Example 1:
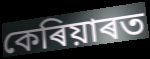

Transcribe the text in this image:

কেৰিয়াৰত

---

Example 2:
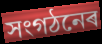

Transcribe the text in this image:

সংগঠনেৰ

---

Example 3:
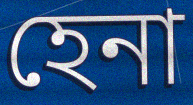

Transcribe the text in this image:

হেনা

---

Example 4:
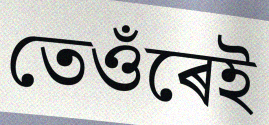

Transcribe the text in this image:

তেওঁৰেই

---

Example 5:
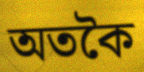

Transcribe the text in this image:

অতকৈ